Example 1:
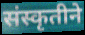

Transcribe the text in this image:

संस्कृतीने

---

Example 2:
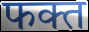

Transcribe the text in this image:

फक्त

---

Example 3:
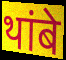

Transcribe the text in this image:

थांबे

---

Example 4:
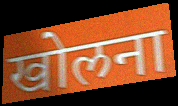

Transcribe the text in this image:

खोलना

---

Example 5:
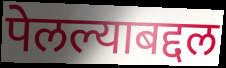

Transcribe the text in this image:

पेलल्याबद्दल